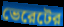
ভেরেটের